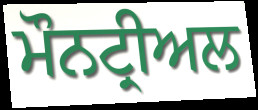
ਮੌਨਟ੍ਰੀਅਲ